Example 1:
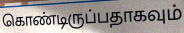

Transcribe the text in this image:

கொண்டிருப்பதாகவும்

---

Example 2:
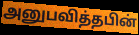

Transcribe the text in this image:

அனுபவித்தபின்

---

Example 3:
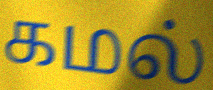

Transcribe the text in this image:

கமல்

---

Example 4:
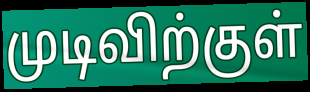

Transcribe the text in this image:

முடிவிற்குள்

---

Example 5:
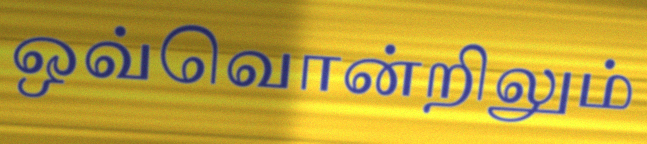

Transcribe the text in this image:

ஒவ்வொன்றிலும்